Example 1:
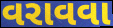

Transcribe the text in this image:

વરાવવા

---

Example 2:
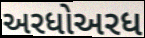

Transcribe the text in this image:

અરધોઅરધ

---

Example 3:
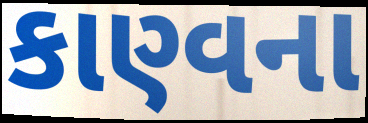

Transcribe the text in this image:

કાણ્વના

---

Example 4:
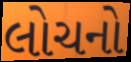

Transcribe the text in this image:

લોચનો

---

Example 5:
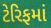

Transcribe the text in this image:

ટેરિફમાં